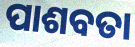
ପାଶବତା